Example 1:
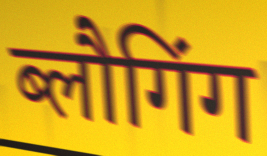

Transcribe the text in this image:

ब्लौगिंग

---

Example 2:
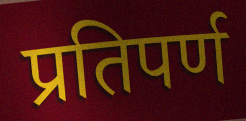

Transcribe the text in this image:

प्रतिपर्ण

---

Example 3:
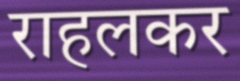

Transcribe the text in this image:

राहलकर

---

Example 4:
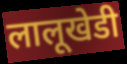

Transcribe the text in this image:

लालूखेडी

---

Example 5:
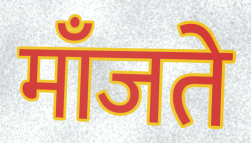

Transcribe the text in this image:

माँजते